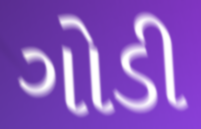
ગોડી